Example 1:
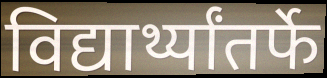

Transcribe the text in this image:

विद्यार्थ्यांतर्फे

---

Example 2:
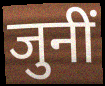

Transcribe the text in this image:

जुनीं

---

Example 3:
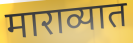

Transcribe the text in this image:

माराव्यात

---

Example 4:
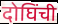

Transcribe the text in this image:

दोघिंची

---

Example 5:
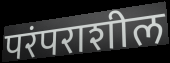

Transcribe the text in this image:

परंपराशील